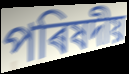
পৰিষদীয়